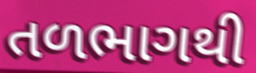
તળભાગથી